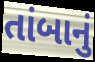
તાંબાનું